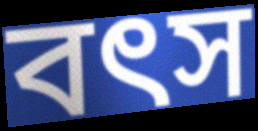
বৎস